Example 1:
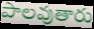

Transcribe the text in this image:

పాలవుతారు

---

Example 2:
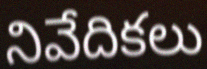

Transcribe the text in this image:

నివేదికలు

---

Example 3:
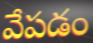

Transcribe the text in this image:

వేపడం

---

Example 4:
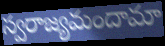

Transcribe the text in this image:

స్వరాజ్యమందామా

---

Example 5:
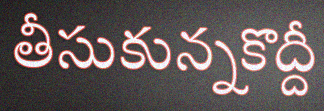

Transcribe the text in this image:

తీసుకున్నకొద్దీ